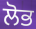
ਲੋਭ